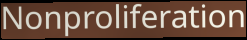
Nonproliferation